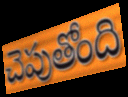
చెపుతోంది